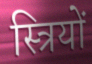
स्‍त्रियों